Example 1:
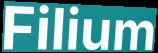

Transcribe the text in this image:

Filium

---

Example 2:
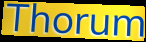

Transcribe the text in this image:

Thorum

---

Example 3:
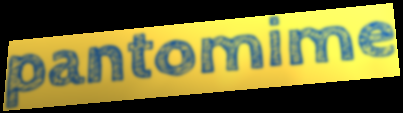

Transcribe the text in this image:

pantomime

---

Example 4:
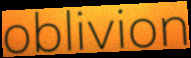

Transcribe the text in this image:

oblivion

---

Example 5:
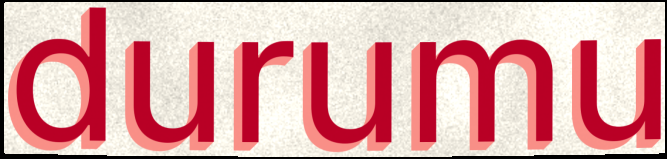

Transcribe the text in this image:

durumu